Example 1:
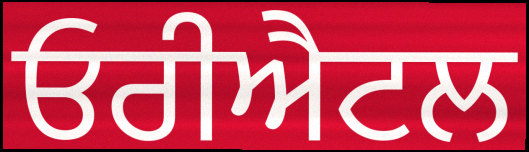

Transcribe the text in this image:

ਓਰੀਐਟਲ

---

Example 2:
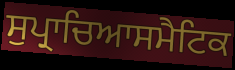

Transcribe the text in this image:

ਸੁਪ੍ਰਾਚਿਆਸਮੈਟਿਕ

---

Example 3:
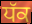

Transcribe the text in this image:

ਧੱਕ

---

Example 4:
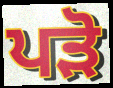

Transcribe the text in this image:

ਪੜੋ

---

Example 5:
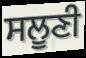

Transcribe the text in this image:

ਸਲੂਣੀ